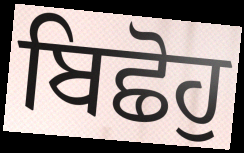
ਬਿਛੋਹੁ